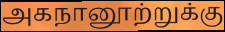
அகநானூற்றுக்கு